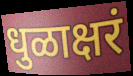
धुळाक्षरं